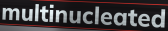
multinucleated